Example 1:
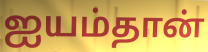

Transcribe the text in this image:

ஐயம்தான்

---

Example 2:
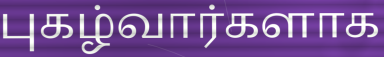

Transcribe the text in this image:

புகழ்வார்களாக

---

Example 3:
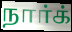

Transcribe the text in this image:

நார்க்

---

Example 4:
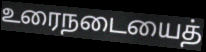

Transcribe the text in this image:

உரைநடையைத்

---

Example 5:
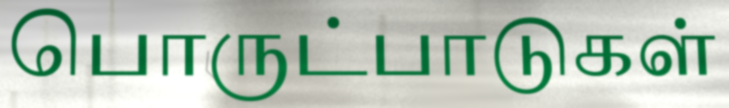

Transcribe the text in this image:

பொருட்பாடுகள்